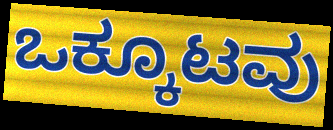
ಒಕ್ಕೂಟವು